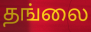
தங்லை